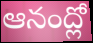
ఆనంద్లో